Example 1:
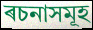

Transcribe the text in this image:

ৰচনাসমূহ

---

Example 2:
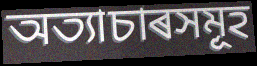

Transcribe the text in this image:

অত্যাচাৰসমূহ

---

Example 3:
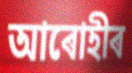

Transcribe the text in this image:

আৰোহীৰ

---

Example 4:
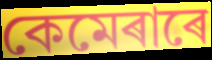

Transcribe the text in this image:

কেমেৰাৰে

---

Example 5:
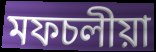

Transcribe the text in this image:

মফচলীয়া